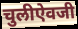
चुलीऐवजी